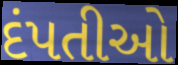
દંપતીઓ